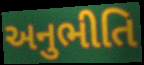
અનુભીતિ